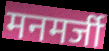
मनमर्जी